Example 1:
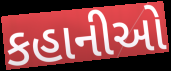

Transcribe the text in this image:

કહાનીઓ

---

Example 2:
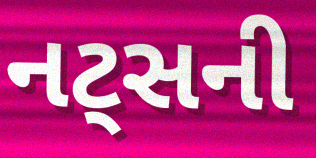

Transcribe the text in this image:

નટ્સની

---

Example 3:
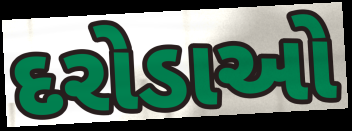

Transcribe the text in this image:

દરોડાઓ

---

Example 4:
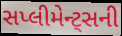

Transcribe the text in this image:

સપ્લીમેન્ટ્સની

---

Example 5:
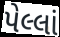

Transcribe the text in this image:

પેલ્લાં